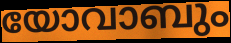
യോവാബും